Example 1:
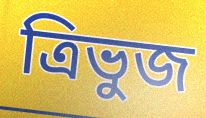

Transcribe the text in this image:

ত্ৰিভুজ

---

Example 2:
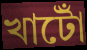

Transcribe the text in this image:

খাটোঁ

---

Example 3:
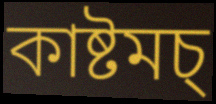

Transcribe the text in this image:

কাষ্টমচ্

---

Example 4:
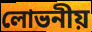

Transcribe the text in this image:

লোভনীয়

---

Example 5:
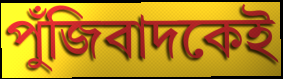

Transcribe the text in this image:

পুঁজিবাদকেই